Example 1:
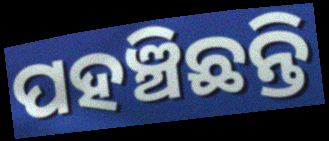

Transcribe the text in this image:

ପହଞ୍ଚିଛନ୍ତି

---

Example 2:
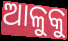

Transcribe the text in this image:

ଆଳୁକୁ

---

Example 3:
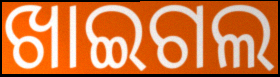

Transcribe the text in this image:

ଖାଇଗଲ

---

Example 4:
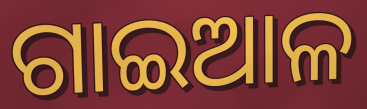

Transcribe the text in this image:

ଗାଇଆଳ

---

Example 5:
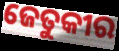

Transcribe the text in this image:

ଜେତୁକୀର